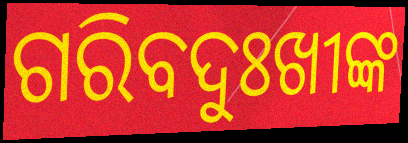
ଗରିବଦୁଃଖୀଙ୍କ